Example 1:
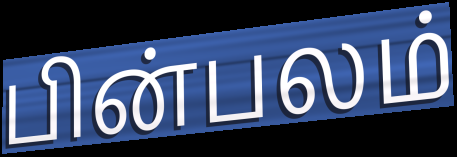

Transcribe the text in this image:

பின்பலம்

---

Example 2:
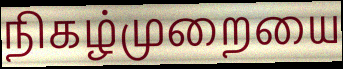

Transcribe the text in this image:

நிகழ்முறையை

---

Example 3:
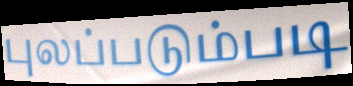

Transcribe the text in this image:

புலப்படும்படி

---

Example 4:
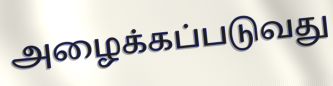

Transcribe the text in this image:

அழைக்கப்படுவது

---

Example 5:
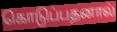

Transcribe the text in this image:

கொடுப்பதனால்